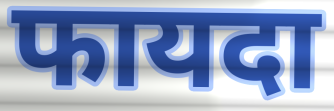
फायदा